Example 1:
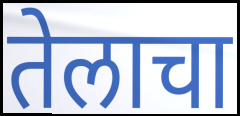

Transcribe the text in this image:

तेलाचा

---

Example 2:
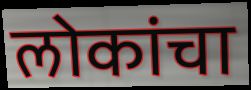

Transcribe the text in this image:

लोकांचा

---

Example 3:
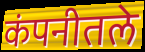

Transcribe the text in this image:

कंपनीतले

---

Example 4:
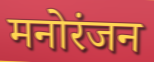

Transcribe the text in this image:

मनोरंजन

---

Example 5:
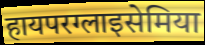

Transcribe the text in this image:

हायपरग्लाइसेमिया